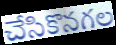
చేసికొనగల